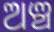
ଅଞ୍ଚ